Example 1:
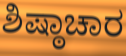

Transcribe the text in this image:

ಶಿಷ್ಠಾಚಾರ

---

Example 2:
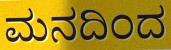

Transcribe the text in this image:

ಮನದಿಂದ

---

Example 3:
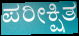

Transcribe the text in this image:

ಪರೀಕ್ಷಿತ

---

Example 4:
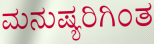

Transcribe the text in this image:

ಮನುಷ್ಯರಿಗಿಂತ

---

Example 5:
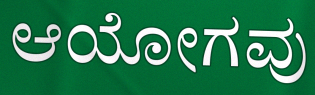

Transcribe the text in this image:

ಆಯೋಗವು